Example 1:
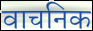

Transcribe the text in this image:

वाचनिक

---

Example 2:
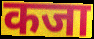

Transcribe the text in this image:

कजा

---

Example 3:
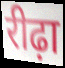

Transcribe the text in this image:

रीढ़ा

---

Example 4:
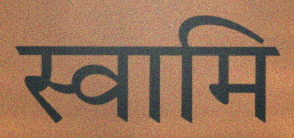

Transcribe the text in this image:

स्वामि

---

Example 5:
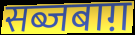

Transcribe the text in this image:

सब्जबाग़